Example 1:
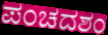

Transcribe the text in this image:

ಪಂಚದಶಂ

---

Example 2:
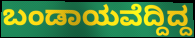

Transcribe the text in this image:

ಬಂಡಾಯವೆದ್ದಿದ್ದ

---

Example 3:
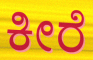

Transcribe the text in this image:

ಕೀರೆ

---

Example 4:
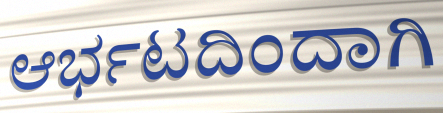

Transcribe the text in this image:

ಆರ್ಭಟದಿಂದಾಗಿ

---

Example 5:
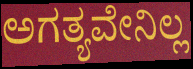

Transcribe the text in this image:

ಅಗತ್ಯವೇನಿಲ್ಲ